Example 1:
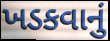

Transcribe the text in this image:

ખડકવાનું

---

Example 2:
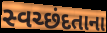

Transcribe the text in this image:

સ્વચ્છંદતાના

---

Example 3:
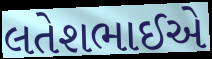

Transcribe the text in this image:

લતેશભાઈએ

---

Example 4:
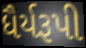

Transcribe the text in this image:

ધૈર્યરૂપી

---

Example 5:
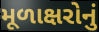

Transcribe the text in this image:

મૂળાક્ષરોનું